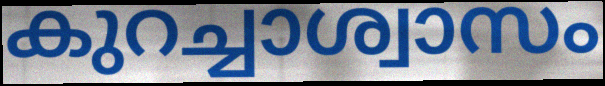
കുറച്ചാശ്വാസം